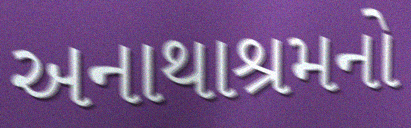
અનાથાશ્રમનો